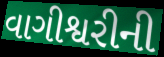
વાગીશ્વરીની